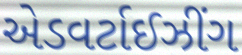
એડવર્ટાઈઝીંગ